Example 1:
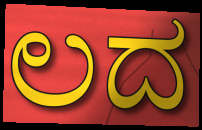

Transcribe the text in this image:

ಲದ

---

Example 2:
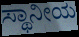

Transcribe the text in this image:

ಸ್ಥಾನೀಯ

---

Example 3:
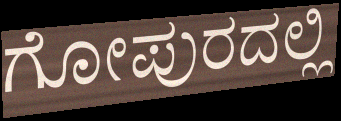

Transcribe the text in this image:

ಗೋಪುರದಲ್ಲಿ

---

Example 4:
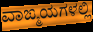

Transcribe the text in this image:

ವಾಙ್ಮಯಗಳಲ್ಲಿ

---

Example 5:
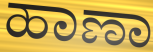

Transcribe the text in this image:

ಹಾಣಾ